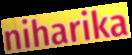
niharika